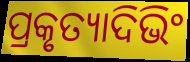
ପ୍ରକୃତ୍ୟାଦିଭିଂ